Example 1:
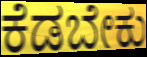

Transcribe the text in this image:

ಕೆಡಬೇಕು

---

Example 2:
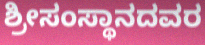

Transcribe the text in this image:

ಶ್ರೀಸಂಸ್ಥಾನದವರ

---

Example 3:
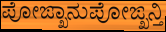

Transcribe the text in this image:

ಪೋಙ್ಖಾನುಪೋಙ್ಖನ್ತಿ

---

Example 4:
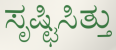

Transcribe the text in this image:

ಸೃಷ್ಟಿಸಿತ್ತು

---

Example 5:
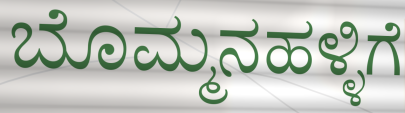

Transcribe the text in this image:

ಬೊಮ್ಮನಹಳ್ಳಿಗೆ